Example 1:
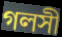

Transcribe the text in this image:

গলসী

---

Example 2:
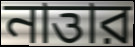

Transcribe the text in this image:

নাত্তার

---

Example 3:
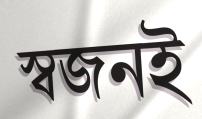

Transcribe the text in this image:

স্বজনই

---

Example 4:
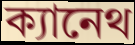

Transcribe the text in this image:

ক্যানেথ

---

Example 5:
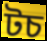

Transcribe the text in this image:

টচ